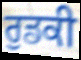
ਰੁਡਕੀ